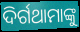
ଦିର୍ଗଥାମାଙ୍କୁ